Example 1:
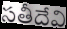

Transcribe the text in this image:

సతీదేవి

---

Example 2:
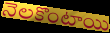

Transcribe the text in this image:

నెలకొంటాయి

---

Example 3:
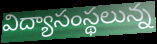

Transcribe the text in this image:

విద్యాసంస్థలున్న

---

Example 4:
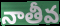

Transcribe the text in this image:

నాతీవ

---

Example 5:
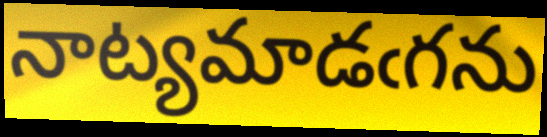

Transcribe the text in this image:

నాట్యమాడఁగను